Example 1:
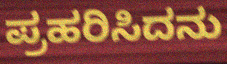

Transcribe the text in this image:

ಪ್ರಹರಿಸಿದನು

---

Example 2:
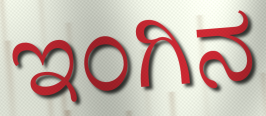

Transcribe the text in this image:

ಇಂಗಿನ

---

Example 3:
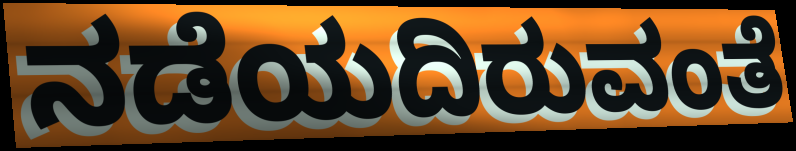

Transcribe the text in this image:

ನಡೆಯದಿರುವಂತೆ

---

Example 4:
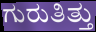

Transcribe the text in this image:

ಗುರುತಿತ್ತು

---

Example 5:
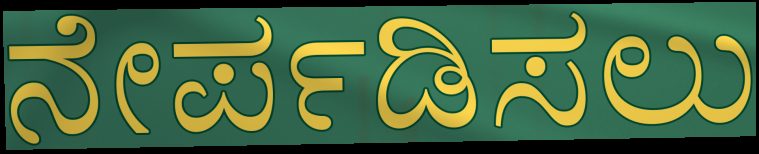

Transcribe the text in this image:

ನೇರ್ಪಡಿಸಲು